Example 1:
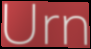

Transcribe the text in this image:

Urn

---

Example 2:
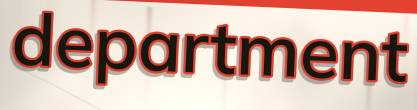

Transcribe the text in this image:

department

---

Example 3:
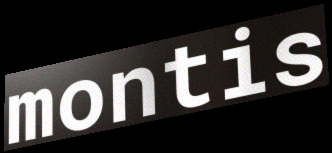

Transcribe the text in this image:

montis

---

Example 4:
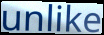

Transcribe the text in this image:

unlike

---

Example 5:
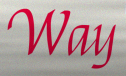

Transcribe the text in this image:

Way